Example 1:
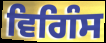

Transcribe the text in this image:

ਵਿਗਿੰਸ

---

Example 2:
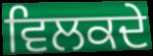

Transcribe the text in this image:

ਵਿਲਕਦੇ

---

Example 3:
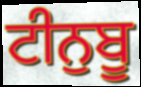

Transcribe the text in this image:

ਟੀਨੁਬੂ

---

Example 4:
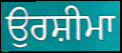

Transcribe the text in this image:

ਉਰਸ਼ੀਮਾ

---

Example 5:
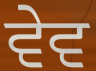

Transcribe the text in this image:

ਵੇਵ